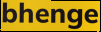
bhenge